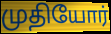
முதியோர்